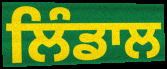
ਲਿੰਡਾਲ